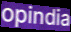
opindia